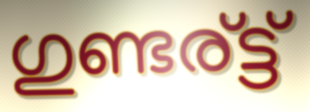
ഗുണ്ടര്ട്ട്